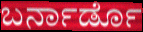
ಬರ್ನಾರ್ಡೊ